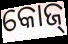
କୋଜ୍